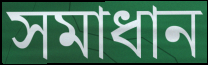
সমাধান